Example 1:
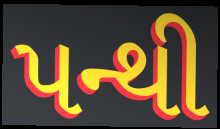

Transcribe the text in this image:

પન્થી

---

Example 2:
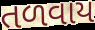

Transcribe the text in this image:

તળવાય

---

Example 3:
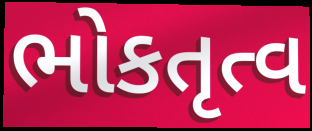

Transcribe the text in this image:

ભોકતૃત્વ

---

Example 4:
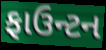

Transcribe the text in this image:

ફાઉન્ટન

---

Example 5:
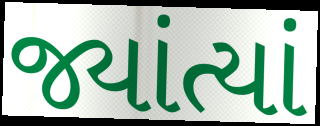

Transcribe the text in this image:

જ્યાંત્યાં